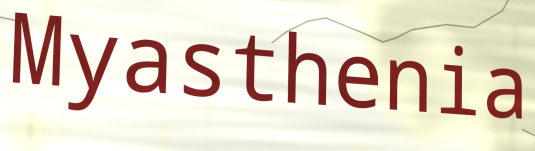
Myasthenia